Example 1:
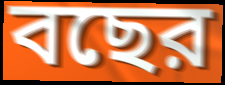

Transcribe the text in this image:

বছের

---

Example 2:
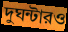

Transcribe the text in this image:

দুঘন্টারও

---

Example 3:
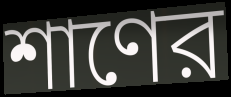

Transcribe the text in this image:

শাণের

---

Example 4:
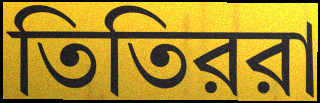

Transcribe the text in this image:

তিতিররা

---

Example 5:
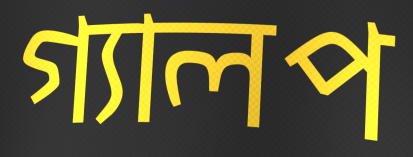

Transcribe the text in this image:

গ্যালপ